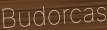
Budorcas